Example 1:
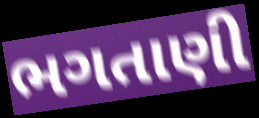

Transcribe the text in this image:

ભગતાણી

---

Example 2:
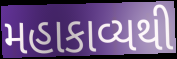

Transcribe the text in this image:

મહાકાવ્યથી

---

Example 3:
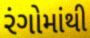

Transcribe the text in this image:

રંગોમાંથી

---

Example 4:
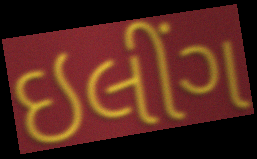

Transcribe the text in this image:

ઇલીંગ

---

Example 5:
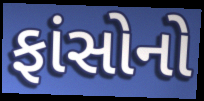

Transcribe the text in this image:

ફાંસોનો